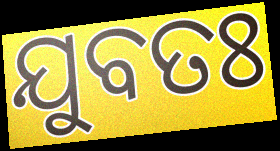
ଯୁବତଃ